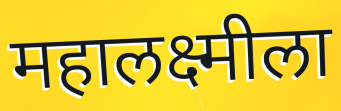
महालक्ष्मीला